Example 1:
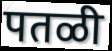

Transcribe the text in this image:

पतळी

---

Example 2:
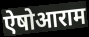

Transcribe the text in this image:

ऐषोआराम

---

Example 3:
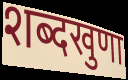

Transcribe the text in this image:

शब्दखुणा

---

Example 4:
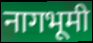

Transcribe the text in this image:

नागभूमी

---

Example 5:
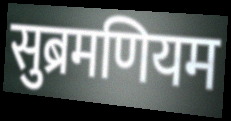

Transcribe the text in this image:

सुब्रमणियम